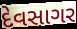
દેવસાગર